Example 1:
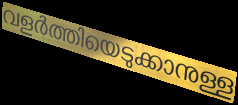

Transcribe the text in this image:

വളർത്തിയെടുക്കാനുള്ള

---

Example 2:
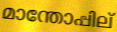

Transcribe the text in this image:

മാന്തോപ്പില്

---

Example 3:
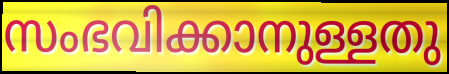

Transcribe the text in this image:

സംഭവിക്കാനുള്ളതു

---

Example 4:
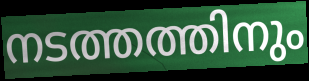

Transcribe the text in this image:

നടത്തത്തിനും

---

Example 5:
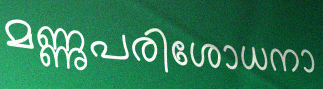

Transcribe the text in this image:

മണ്ണുപരിശോധനാ